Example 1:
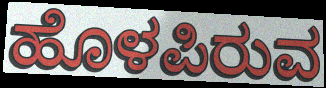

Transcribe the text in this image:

ಹೊಳಪಿರುವ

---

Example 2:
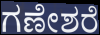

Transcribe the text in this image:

ಗಣೇಶರೆ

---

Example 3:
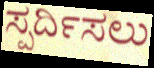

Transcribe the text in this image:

ಸ್ಪರ್ದಿಸಲು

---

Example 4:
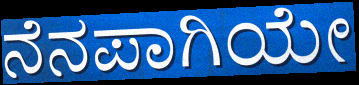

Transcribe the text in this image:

ನೆನಪಾಗಿಯೇ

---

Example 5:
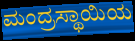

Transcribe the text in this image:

ಮಂದ್ರಸ್ಥಾಯಿಯ